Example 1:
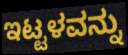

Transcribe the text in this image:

ಇಟ್ಟಳವನ್ನು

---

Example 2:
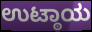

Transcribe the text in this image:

ಉಟ್ಠಾಯ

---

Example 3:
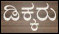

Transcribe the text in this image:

ಡಿಕ್ಕರು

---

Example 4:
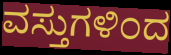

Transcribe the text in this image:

ವಸ್ತುಗಳಿಂದ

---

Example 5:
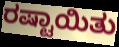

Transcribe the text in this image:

ರಷ್ಟಾಯಿತು